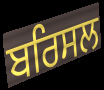
ਬਰਿਸਲ